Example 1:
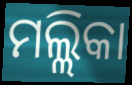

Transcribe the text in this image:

ମଲ୍ଲିକା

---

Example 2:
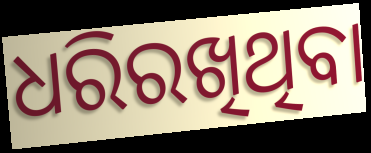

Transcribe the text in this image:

ଧରିରଖିଥିବା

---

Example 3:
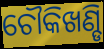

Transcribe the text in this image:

ଚୌକିଖଣ୍ଡି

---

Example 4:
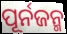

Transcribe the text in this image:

ପୂର୍ନଜନ୍ମ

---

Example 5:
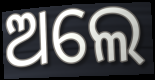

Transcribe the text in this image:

ଅଲେ